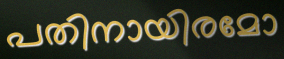
പതിനായിരമോ